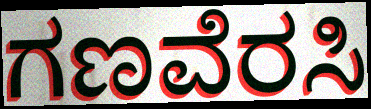
ಗಣವೆರಸಿ